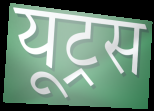
यूट्रस